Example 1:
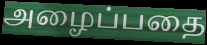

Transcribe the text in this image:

அழைப்பதை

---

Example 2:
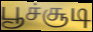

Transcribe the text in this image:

பூச்சூடி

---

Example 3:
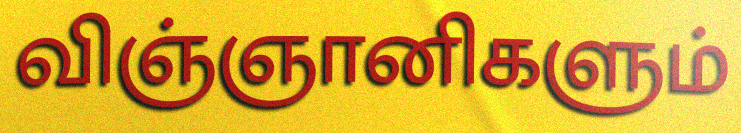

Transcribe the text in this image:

விஞ்ஞானிகளும்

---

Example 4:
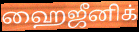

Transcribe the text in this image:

ஹைஜீனிக்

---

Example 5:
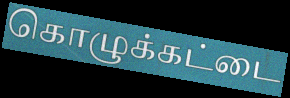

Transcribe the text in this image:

கொழுக்கட்டை